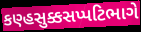
કણ્હસુક્કસપ્પટિભાગે